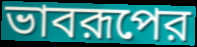
ভাবরূপের